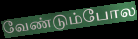
வேண்டும்போல